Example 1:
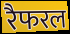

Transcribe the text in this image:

रैफरल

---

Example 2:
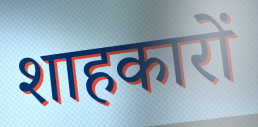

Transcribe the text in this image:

शाहकारों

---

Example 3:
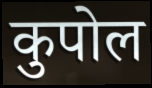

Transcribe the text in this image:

कुपोल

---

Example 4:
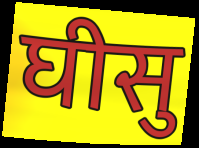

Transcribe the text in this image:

घीसु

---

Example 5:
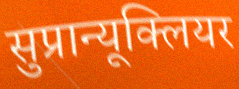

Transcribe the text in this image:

सुप्रान्यूक्लियर